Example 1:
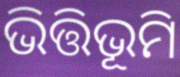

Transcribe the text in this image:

ଭିତ୍ତିଭୂମି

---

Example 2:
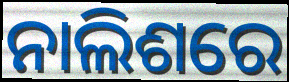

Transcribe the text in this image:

ନାଲିଶରେ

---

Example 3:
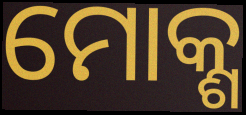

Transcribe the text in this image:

ମୋକ୍ଶ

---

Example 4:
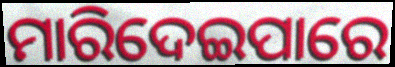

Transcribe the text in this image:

ମାରିଦେଇପାରେ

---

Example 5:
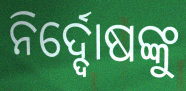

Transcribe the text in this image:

ନିର୍ଦ୍ଦୋଷଙ୍କୁ